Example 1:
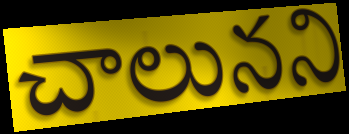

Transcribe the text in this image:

చాలునని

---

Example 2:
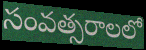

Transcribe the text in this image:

సంవత్సరాలలో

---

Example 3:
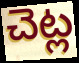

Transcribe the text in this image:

చెట్ల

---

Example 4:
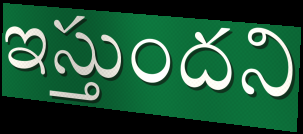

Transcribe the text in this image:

ఇస్తుందని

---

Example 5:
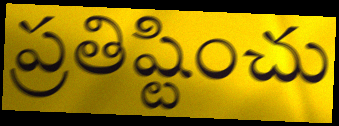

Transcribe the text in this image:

ప్రతిష్టించు